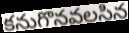
కనుగొనవలసిన